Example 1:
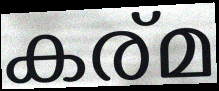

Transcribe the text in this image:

കര്മ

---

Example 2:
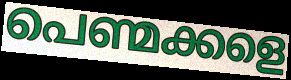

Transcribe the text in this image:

പെണ്മക്കളെ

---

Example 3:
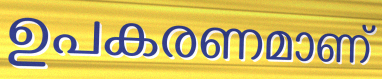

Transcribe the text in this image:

ഉപകരണമാണ്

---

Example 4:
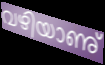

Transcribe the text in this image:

വഴിയാണു്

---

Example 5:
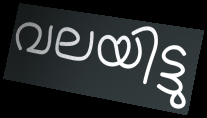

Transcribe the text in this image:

വലയിട്ടു